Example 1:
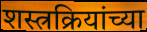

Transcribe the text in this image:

शस्त्रक्रियांच्या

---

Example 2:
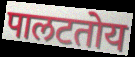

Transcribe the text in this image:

पालटतोय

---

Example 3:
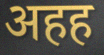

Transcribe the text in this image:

अहह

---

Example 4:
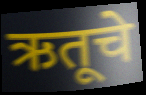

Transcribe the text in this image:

ऋतूचे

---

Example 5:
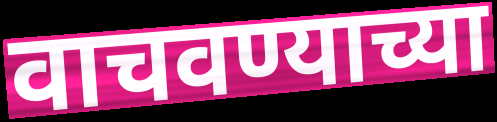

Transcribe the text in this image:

वाचवण्याच्या